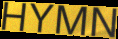
HYMN